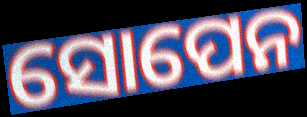
ସୋପେନ